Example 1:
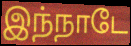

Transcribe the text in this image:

இந்நாடே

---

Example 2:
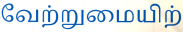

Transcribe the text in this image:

வேற்றுமையிற்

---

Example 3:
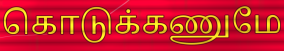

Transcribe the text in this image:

கொடுக்கணுமே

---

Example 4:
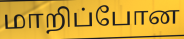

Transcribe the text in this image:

மாறிப்போன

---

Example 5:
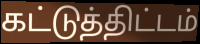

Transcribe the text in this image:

கட்டுத்திட்டம்